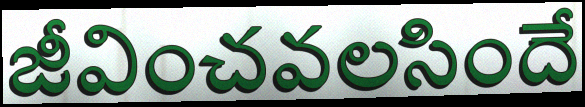
జీవించవలసిందే